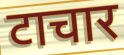
टाचार